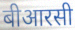
बीआरसी